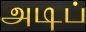
அடிப்